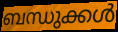
ബന്ധുക്കൾ